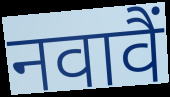
नवावैं